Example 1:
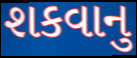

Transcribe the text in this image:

શકવાનુ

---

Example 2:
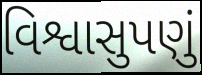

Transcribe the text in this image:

વિશ્વાસુપણું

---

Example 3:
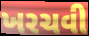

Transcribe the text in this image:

ખરચવી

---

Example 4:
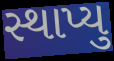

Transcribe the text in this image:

સ્થાપ્યુ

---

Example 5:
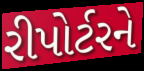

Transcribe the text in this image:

રીપોર્ટરને